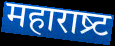
महाराष्र्ट